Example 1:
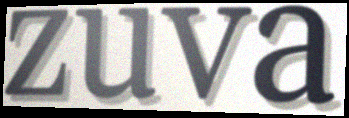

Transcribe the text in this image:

zuva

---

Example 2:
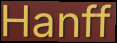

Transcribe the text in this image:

Hanff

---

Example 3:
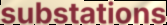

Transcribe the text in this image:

substations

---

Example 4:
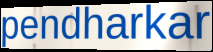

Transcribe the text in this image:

pendharkar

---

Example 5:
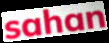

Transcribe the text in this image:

sahan